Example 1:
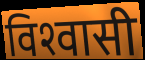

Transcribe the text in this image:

विश्वासी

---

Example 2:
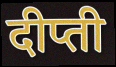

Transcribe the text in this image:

दीप्ती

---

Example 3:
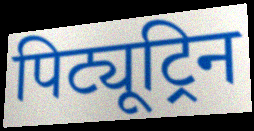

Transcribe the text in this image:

पिट्यूट्रिन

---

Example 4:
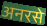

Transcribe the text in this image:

अनरसे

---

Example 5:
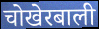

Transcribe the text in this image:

चोखेरबाली